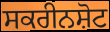
ਸਕਰੀਨਸ਼ੋਟ